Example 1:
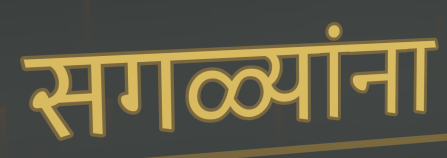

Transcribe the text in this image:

सगळ्यांना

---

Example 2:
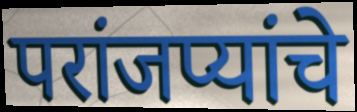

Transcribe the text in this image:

परांजप्यांचे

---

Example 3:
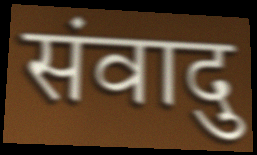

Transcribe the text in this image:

संवादु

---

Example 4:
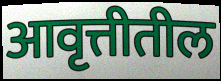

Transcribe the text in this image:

आवृत्तीतील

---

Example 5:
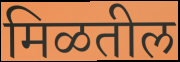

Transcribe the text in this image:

मिळतील